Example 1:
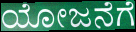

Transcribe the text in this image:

ಯೋಜನೆಗೆ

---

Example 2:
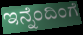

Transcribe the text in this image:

ಇನ್ನೆಂದಿಂಗೆ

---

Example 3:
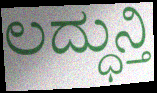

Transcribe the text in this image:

ಲದ್ಧುನ್ತಿ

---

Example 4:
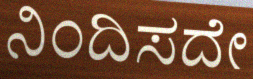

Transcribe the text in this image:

ನಿಂದಿಸದೇ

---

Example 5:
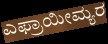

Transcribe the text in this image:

ಎಫ್ರಾಯೀಮ್ಯರ